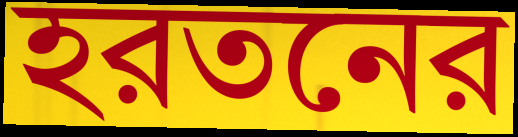
হরতনের